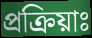
প্রক্রিয়াঃ